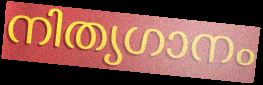
നിത്യഗാനം